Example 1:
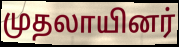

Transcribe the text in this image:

முதலாயினர்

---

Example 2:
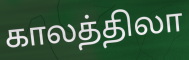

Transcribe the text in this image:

காலத்திலா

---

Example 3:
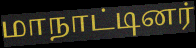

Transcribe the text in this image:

மாநாட்டினர்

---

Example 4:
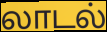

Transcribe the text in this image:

லாடல்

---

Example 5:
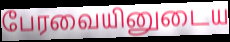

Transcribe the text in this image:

பேரவையினுடைய